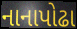
નાનાપોઢા